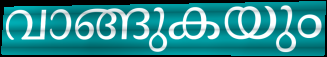
വാങ്ങുകയും